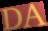
DA